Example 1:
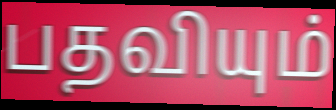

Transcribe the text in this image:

பதவியும்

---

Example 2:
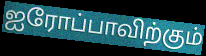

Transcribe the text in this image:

ஐரோப்பாவிற்கும்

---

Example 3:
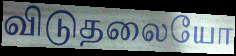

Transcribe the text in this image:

விடுதலையோ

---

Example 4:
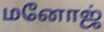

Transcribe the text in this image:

மனோஜ்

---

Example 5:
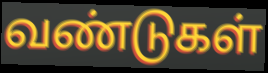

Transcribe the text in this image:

வண்டுகள்